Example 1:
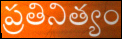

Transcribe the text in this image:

ప్రతినిత్యం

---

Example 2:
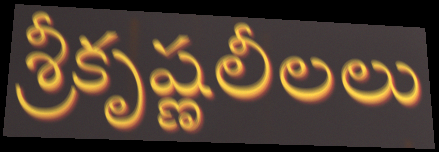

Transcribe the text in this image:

శ్రీకృష్ణలీలలు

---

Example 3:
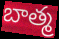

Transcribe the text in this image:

బాత్మ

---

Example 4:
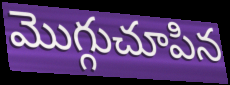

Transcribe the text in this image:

మొగ్గుచూపిన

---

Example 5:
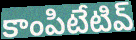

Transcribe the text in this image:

కాంపిటేటివ్